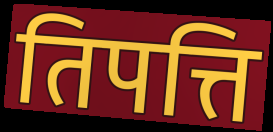
तिपत्ति